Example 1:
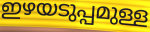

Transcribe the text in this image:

ഇഴയടുപ്പമുള്ള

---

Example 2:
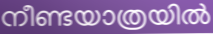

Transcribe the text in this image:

നീണ്ടയാത്രയിൽ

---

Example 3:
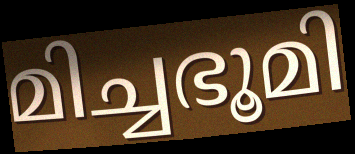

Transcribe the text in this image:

മിച്ചഭൂമി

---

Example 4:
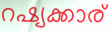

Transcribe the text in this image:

റഷ്യക്കാര്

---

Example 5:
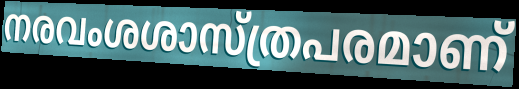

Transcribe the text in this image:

നരവംശശാസ്ത്രപരമാണ്